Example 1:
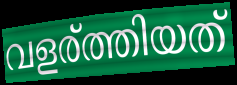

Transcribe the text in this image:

വളര്ത്തിയത്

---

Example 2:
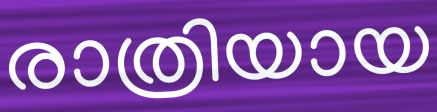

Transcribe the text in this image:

രാത്രിയായ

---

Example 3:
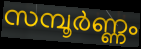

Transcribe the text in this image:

സമ്പൂർണ്ണം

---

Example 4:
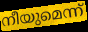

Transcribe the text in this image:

നീയുമെന്ന്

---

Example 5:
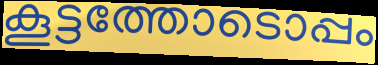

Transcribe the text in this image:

കൂട്ടത്തോടൊപ്പം